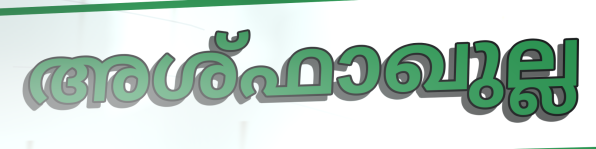
അശ്ഫാഖുല്ല